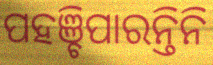
ପହଞ୍ଚିପାରନ୍ତିନି